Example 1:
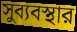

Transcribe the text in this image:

সুব্যবস্থার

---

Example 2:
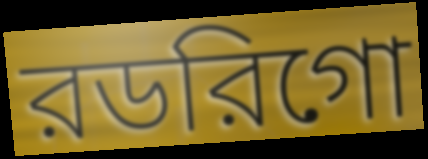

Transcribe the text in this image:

রডরিগো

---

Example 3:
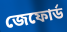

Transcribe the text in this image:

জেফোর্ড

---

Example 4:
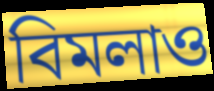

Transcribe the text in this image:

বিমলাও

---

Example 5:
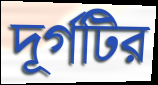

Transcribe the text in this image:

দূর্গটির